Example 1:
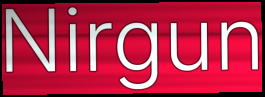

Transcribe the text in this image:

Nirgun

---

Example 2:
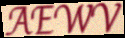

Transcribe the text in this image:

AEWV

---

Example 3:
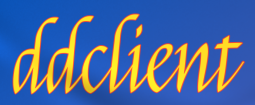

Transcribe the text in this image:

ddclient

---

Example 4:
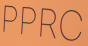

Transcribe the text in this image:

PPRC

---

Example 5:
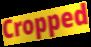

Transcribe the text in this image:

Cropped